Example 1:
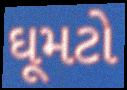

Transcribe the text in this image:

ઘૂમટો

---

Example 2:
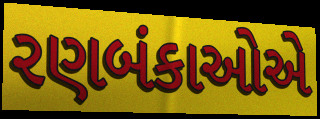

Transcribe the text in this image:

રણબંકાઓએ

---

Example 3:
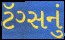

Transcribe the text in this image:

ટૅગ્સનું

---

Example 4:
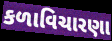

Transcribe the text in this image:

કળાવિચારણા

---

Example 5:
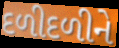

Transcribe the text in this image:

દળીદળીને